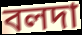
বলদা